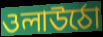
ওলাউঠো